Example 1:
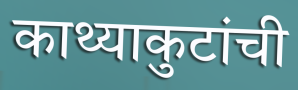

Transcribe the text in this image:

काथ्याकुटांची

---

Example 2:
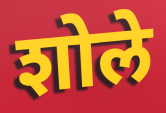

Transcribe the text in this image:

शोले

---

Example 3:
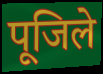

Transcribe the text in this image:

पूजिले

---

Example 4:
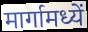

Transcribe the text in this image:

मार्गामध्यें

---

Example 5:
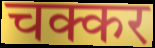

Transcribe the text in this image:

चक्कर